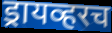
ड्रायव्हरच